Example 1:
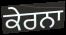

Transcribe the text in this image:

ਕੇਰਨਾ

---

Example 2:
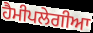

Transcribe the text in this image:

ਹੈਮੀਪਲੇਗੀਆ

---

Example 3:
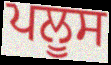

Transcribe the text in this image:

ਪਲੂਸ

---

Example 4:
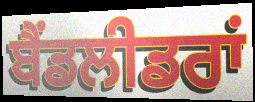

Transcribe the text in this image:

ਬੈਂਡਲੀਡਰਾਂ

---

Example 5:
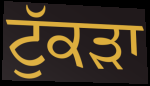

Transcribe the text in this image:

ਟੁੱਕੜਾ